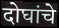
दोघांचे